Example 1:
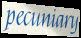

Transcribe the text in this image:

pecuniary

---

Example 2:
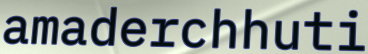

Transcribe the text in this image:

amaderchhuti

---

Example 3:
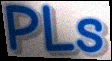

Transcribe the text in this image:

PLs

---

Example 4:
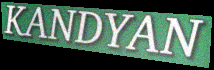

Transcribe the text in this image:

KANDYAN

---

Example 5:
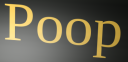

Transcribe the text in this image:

Poop